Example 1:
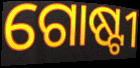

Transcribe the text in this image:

ଗୋଷ୍ଟୀ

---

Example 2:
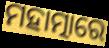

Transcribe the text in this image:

ମହାତ୍ମାରେ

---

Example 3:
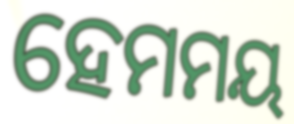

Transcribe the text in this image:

ହେମମୟ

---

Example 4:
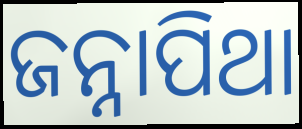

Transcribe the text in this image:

ଜନ୍ନାପିଥା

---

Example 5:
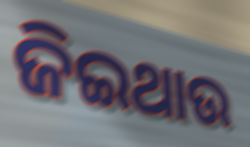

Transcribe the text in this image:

ଜିଇଥାଉ